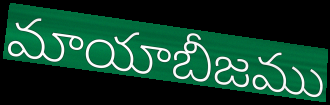
మాయాబీజము